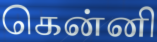
கென்னி